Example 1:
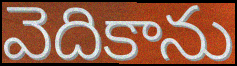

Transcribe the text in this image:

వెదికాను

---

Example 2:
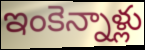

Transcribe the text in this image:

ఇంకెన్నాళ్లు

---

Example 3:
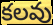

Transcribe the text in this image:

కలవు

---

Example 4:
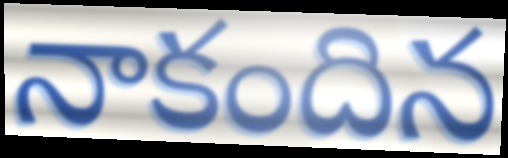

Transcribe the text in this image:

నాకందిన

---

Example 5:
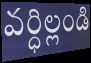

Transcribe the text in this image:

వర్ధిల్లండి